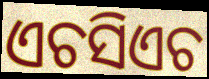
ଏଚସିଏଚ